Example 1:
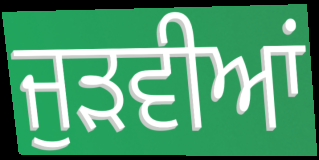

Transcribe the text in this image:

ਜੁੜਵੀਆਂ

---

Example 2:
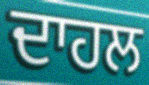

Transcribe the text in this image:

ਦਾਹਲ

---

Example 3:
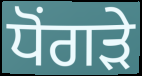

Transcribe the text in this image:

ਧੋਂਗੜੇ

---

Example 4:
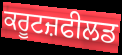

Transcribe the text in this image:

ਕਰੂਟਜ਼ਫੀਲਡ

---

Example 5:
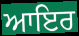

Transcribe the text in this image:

ਆਇਰ